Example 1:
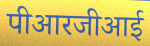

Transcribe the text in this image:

पीआरजीआई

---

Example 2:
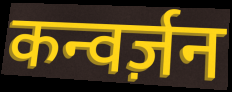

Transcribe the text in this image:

कन्वर्ज़न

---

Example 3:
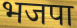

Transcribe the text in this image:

भजपा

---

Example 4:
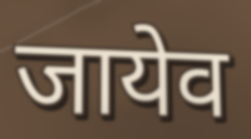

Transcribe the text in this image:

जायेव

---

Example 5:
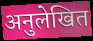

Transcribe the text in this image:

अनुलेखित